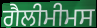
ਗੈਲੀਮੀਮਸ